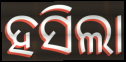
ହସିଲା